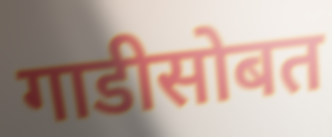
गाडीसोबत